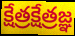
క్షేత్రక్షేత్రజ్ఞ